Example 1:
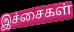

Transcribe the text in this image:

இச்சைகள்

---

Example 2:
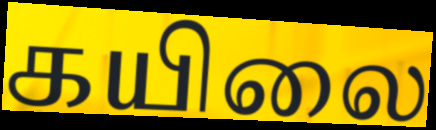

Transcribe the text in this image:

கயிலை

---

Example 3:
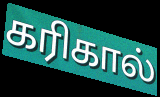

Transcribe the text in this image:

கரிகால்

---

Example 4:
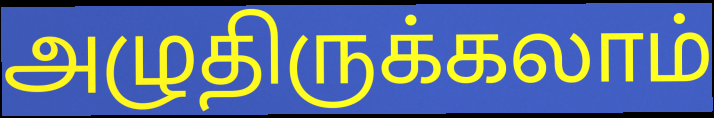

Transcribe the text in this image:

அழுதிருக்கலாம்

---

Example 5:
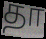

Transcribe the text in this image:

தா